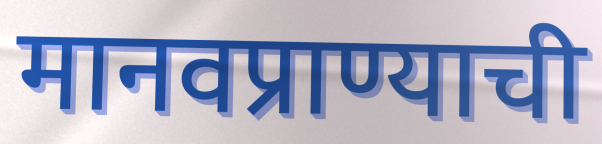
मानवप्राण्याची